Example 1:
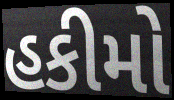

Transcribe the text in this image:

હકીમો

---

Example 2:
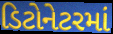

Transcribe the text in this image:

ડિટોનેટરમાં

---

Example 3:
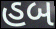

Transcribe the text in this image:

હબ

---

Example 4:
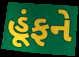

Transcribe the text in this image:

હૂંફને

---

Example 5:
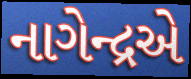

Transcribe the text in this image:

નાગેન્દ્રએ